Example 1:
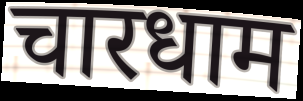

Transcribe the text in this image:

चारधाम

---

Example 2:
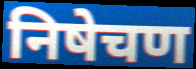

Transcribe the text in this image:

निषेचण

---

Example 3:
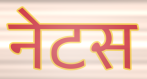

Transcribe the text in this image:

नेटस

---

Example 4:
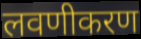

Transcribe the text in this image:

लवणीकरण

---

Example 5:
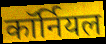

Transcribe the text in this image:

कॉर्नियल